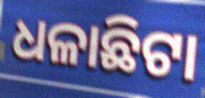
ଧଳାଛିଟା